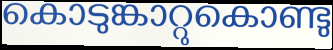
കൊടുങ്കാറ്റുകൊണ്ടു